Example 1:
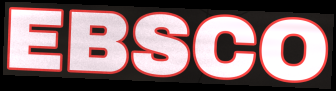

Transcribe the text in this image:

EBSCO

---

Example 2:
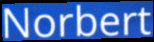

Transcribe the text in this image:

Norbert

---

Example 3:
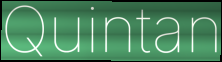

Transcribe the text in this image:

Quintan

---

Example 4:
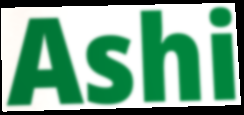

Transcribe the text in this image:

Ashi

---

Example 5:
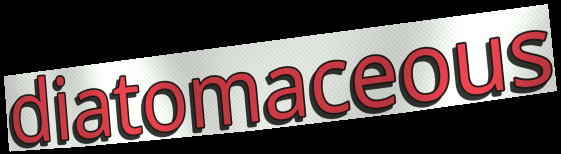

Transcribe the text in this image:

diatomaceous